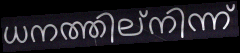
ധനത്തില്നിന്ന്